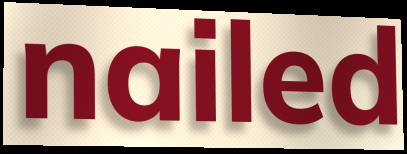
nailed